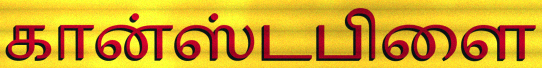
கான்ஸ்டபிளை